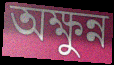
অক্ষুন্ন